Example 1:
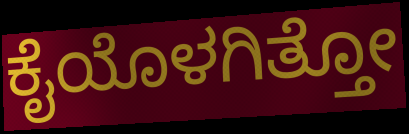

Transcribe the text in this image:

ಕೈಯೊಳಗಿತ್ತೋ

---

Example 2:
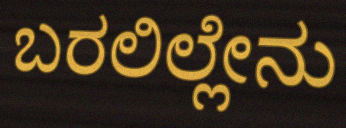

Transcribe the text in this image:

ಬರಲಿಲ್ಲೇನು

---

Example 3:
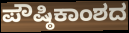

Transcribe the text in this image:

ಪೌಷ್ಠಿಕಾಂಶದ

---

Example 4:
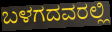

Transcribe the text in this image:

ಬಳಗದವರಲ್ಲಿ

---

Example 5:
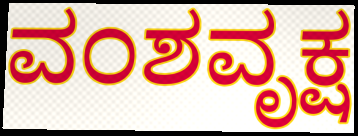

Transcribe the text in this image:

ವಂಶವೃಕ್ಷ